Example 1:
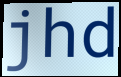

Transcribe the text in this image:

jhd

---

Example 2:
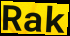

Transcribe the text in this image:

Rak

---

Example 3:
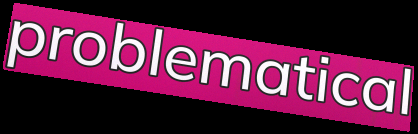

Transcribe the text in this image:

problematical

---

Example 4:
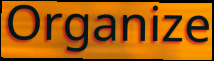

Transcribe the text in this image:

Organize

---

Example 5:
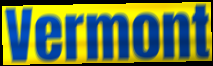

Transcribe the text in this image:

Vermont